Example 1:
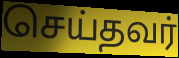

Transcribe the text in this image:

செய்தவர்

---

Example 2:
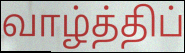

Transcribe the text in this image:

வாழ்த்திப்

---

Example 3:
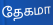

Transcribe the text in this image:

தேகமா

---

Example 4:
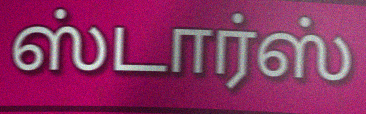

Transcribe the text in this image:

ஸ்டார்ஸ்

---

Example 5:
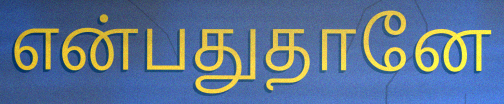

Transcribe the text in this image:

என்பதுதானே